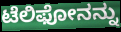
ಟೆಲಿಫೋನನ್ನು